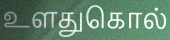
உளதுகொல்